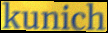
kunich